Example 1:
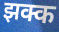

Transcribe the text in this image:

झक्क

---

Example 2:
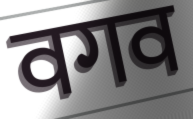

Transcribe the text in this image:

वगव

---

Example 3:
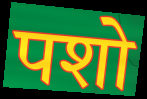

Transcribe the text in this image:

पशो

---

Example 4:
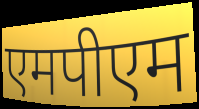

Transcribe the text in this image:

एमपीएम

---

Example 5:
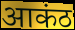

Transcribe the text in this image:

आकंठ